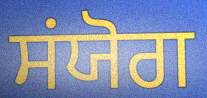
ਸਂਯੋਗ